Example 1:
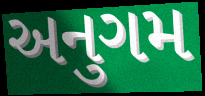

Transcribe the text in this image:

અનુગમ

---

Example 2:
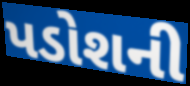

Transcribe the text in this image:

પડોશની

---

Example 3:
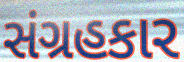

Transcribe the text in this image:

સંગ્રહકાર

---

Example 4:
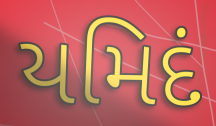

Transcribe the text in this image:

યમિદં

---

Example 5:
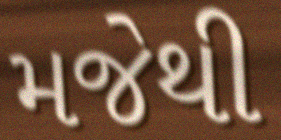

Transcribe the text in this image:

મજેથી